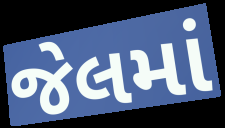
જેલમાં